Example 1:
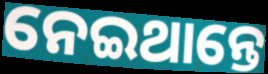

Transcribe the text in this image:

ନେଇଥାନ୍ତେ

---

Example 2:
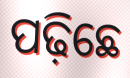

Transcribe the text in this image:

ପଢ଼ିଛେ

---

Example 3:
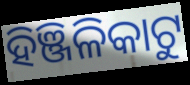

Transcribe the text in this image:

ହିଞ୍ଜିଳିକାଟୁ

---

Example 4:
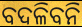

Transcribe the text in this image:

ବଦଳିବନି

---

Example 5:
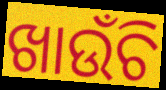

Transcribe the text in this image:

ଖାଉଁଚି